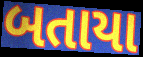
બતાયા